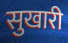
सुखारी